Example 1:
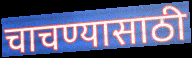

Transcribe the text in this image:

चाचण्यासाठी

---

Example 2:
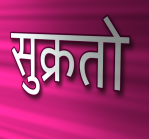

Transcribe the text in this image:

सुक्रतो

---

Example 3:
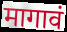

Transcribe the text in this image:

मागावं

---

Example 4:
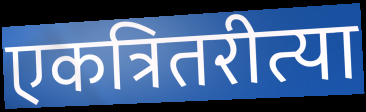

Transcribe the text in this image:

एकत्रितरीत्या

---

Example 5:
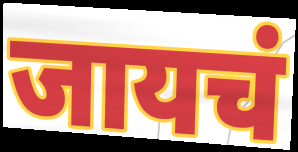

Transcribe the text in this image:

जायचं